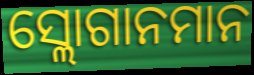
ସ୍ଲୋଗାନମାନ